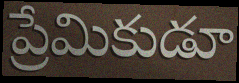
ప్రేమికుడూ